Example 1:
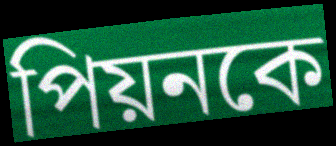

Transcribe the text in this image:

পিয়নকে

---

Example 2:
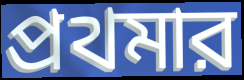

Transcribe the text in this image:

প্রথমার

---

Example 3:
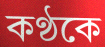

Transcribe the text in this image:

কণ্ঠকে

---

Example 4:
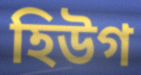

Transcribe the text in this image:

হিউগ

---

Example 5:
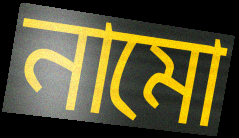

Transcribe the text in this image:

নামো